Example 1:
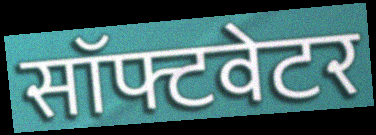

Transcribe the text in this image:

सॉफ्टवेटर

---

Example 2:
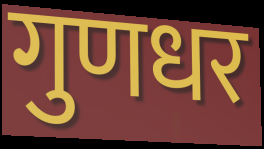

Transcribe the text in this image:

गुणधर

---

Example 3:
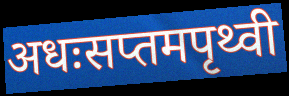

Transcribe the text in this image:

अधःसप्तमपृथ्वी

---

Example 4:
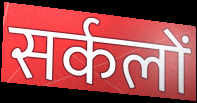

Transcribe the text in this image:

सर्कलों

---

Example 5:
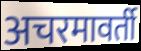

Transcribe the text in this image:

अचरमावर्ती